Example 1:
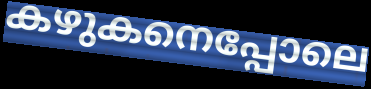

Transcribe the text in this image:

കഴുകനെപ്പോലെ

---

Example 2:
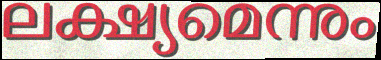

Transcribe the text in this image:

ലക്ഷ്യമെന്നും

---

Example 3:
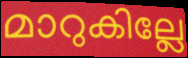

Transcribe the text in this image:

മാറുകില്ലേ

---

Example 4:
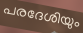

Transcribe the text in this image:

പരദേശിയും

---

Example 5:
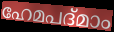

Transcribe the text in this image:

ഹേമപദ്മാം